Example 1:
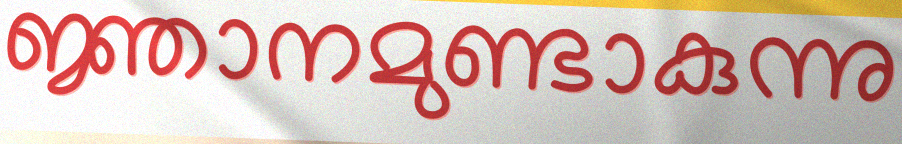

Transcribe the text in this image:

ജ്ഞാനമുണ്ടാകുന്നു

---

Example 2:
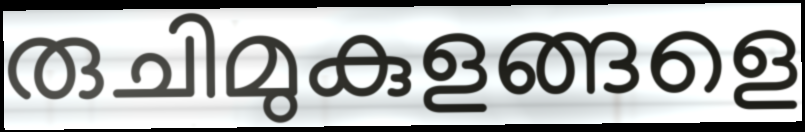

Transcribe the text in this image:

രുചിമുകുളങ്ങളെ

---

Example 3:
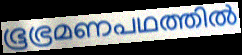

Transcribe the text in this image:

ഭൂഭ്രമണപഥത്തിൽ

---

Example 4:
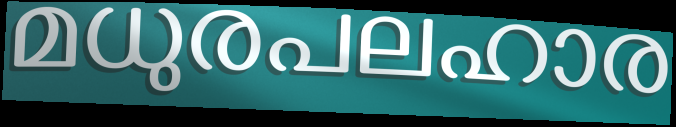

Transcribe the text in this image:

മധുരപലഹാര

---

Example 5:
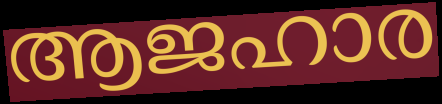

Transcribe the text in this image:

ആജഹാര